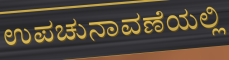
ಉಪಚುನಾವಣೆಯಲ್ಲಿ